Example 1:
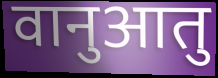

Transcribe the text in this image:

वानुआतु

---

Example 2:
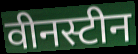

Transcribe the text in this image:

वीनस्टीन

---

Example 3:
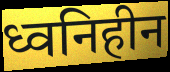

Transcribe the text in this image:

ध्वनिहीन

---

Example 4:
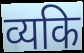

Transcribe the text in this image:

व्यकि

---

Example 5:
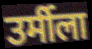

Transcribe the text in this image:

उर्मीला